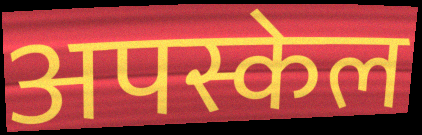
अपस्केल